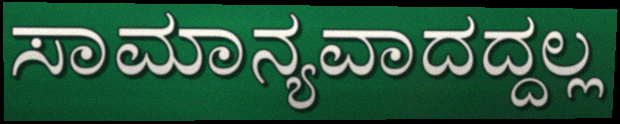
ಸಾಮಾನ್ಯವಾದದ್ದಲ್ಲ